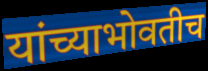
यांच्याभोवतीच